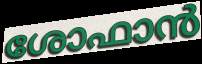
ശോഫാൻ